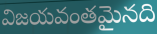
విజయవంతమైనది